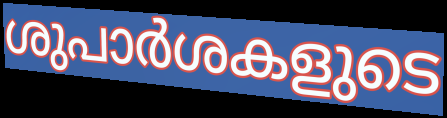
ശുപാർശകളുടെ